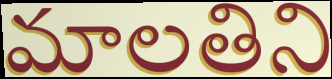
మాలతిని